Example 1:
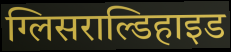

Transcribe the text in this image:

ग्लिसराल्डिहाइड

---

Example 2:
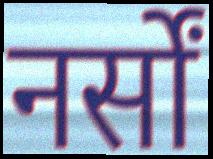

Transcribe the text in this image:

नर्सों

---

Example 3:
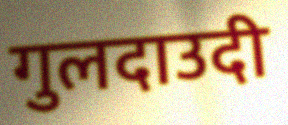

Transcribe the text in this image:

गुलदाउदी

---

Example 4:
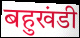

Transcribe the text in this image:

बहुखंडी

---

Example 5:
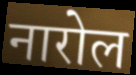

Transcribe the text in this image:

नारोल